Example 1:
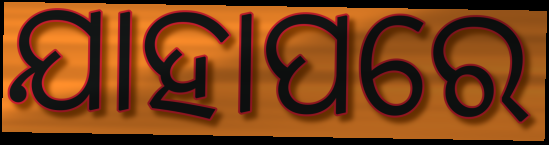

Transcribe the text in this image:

ଯାହାପରେ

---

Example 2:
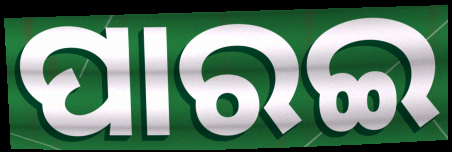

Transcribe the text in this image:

ପାରଇ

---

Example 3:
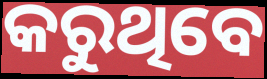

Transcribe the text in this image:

କରୁଥିବେ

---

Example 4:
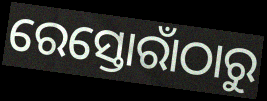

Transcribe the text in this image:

ରେସ୍ତୋରାଁଠାରୁ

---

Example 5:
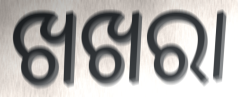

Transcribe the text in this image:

ଖଖରା